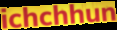
ichchhun